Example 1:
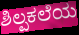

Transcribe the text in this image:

ಶಿಲ್ಪಕಲೆಯ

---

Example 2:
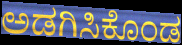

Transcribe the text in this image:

ಅಡಗಿಸಿಕೊಂಡ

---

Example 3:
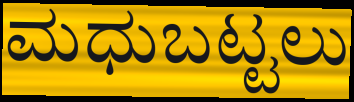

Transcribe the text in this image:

ಮಧುಬಟ್ಟಲು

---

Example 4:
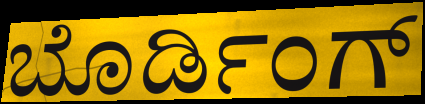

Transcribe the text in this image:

ಬೊರ್ಡಿಂಗ್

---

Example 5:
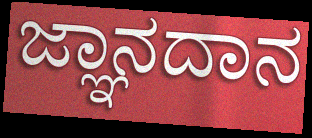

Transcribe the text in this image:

ಜ್ಞಾನದಾನ